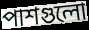
পাশগুলো